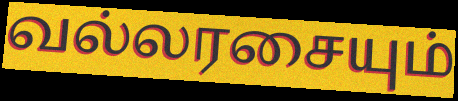
வல்லரசையும்